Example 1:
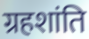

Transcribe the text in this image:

ग्रहशांति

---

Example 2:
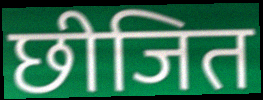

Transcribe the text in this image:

छीजित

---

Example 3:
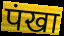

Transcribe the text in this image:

पंखा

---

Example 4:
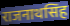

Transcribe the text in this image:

राजनाथसिंह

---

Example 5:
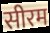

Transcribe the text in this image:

सीरम